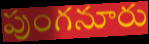
పుంగనూరు